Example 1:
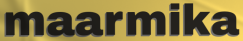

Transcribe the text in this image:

maarmika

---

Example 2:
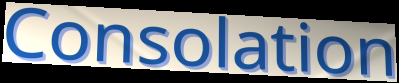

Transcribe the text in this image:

Consolation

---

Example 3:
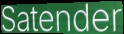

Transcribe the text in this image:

Satender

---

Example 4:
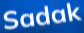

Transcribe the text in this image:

Sadak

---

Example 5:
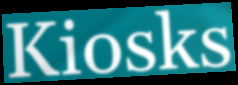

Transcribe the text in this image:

Kiosks